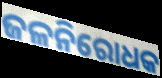
ଜଳନିରୋଧକ